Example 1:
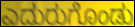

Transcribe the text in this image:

ಎದುರುಗೊಂಡು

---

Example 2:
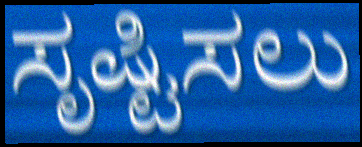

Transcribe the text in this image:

ಸೃಷ್ಟಿಸಲು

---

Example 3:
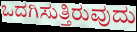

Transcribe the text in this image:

ಒದಗಿಸುತ್ತಿರುವುದು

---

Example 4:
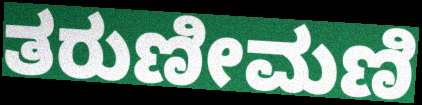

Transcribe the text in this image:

ತರುಣೀಮಣಿ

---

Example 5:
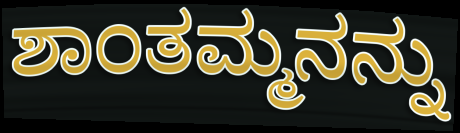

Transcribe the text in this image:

ಶಾಂತಮ್ಮನನ್ನು